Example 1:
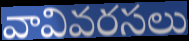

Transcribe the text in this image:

వావివరసలు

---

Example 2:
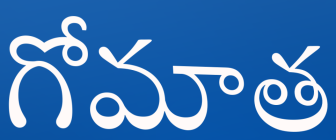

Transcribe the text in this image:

గోమాత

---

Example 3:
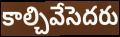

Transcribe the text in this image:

కాల్చివేసెదరు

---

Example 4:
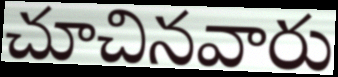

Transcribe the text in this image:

చూచినవారు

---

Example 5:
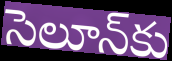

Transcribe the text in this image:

సెలూన్‌కు